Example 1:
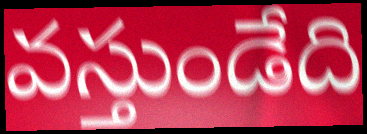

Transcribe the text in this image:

వస్తుండేది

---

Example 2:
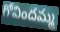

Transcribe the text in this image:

గోవిందమ్మ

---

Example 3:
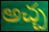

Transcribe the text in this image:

అచ్చ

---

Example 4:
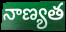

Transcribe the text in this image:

నాణ్యత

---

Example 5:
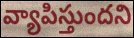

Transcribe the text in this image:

వ్యాపిస్తుందని